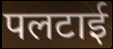
पलटाई